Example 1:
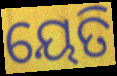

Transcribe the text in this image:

ୟେତି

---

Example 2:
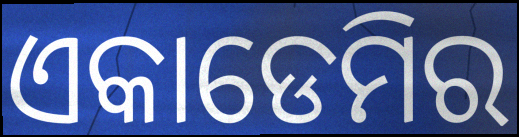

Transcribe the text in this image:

ଏକାଡେମିର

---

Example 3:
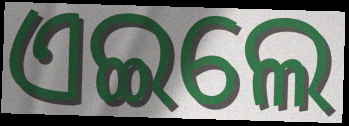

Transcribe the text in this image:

ଏଇଲେ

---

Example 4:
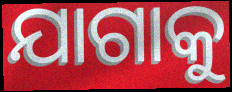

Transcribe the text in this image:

ଯାଗାକୁ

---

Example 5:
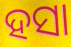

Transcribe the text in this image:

ହସା